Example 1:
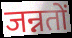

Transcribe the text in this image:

जन्नतों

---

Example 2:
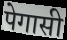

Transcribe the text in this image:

पेगासी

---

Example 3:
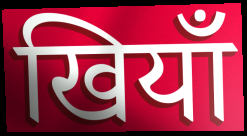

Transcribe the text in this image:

खियाँ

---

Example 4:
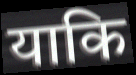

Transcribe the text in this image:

याकि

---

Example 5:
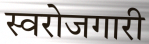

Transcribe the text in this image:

स्वरोजगारी